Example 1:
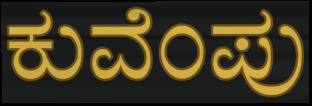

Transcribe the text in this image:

ಕುವೆಂಪು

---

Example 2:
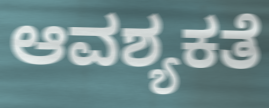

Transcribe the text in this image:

ಆವಶ್ಯಕತೆ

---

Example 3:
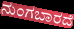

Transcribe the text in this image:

ನುಂಗಬಾರದೆ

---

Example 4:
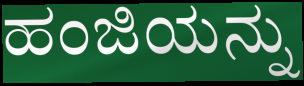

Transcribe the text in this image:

ಹಂಜಿಯನ್ನು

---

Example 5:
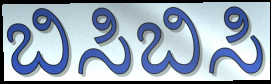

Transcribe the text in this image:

ಬಿಸಿಬಿಸಿ